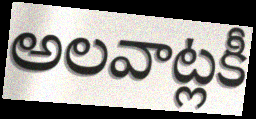
అలవాట్లకీ